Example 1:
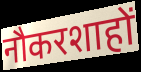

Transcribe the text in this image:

नौकरशाहों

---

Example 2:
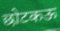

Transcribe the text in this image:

छोटकऊ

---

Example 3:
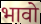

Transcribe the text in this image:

भावो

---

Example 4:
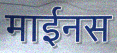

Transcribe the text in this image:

माईनस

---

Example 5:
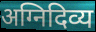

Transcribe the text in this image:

अग्निदिव्य